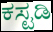
ಕಸ್ಟಡಿ